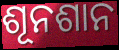
ଶୂନଶାନ